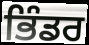
ਭਿੰਡਰ